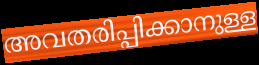
അവതരിപ്പിക്കാനുള്ള